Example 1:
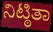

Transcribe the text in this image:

ನಿಟ್ಠಿತಾ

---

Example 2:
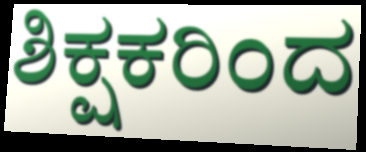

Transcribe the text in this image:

ಶಿಕ್ಷಕರಿಂದ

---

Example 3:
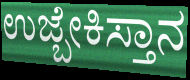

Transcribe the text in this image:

ಉಜ್ಬೇಕಿಸ್ತಾನ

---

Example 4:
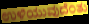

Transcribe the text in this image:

ಉಳಿಯುವುದೆಂತು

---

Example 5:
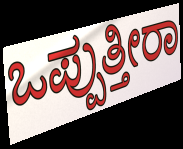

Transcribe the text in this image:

ಒಪ್ಪುತ್ತೀರಾ